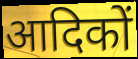
आदिकों